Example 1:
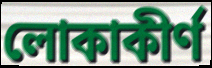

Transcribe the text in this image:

লোকাকীর্ণ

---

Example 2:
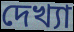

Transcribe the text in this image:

দেখ্যা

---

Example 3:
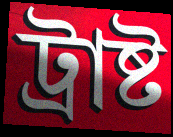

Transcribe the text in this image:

ট্রাষ্ট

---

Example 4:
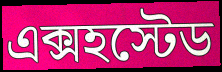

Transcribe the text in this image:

এক্সহস্টেড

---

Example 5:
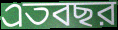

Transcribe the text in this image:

এতবছর